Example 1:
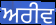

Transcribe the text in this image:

ਅਰੀਵ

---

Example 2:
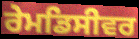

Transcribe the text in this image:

ਰੇਮਡਿਸੀਵਰ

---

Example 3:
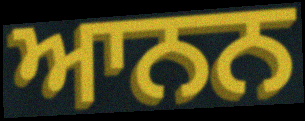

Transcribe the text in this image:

ਆਨਨ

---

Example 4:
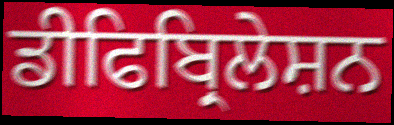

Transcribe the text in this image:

ਡੀਫਿਬ੍ਰਿਲੇਸ਼ਨ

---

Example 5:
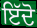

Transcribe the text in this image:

ਇੱਦੋ